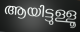
ആയിട്ടുള്ളൂ